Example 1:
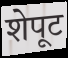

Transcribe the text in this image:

शेपूट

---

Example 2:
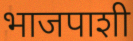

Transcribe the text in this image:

भाजपाशी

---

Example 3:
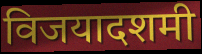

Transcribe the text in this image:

विजयादशमी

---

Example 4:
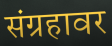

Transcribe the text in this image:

संग्रहावर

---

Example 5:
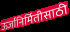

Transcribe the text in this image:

ऊर्जानिर्मितीसाठी